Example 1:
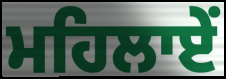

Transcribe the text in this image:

ਮਹਿਲਾਏਂ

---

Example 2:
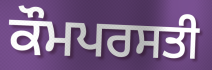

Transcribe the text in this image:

ਕੌਮਪਰਸਤੀ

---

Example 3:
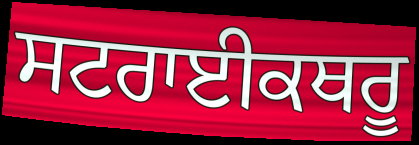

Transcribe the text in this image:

ਸਟਰਾਈਕਥਰੂ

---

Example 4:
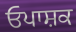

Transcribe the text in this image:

ਓਪਾਸ਼ਕ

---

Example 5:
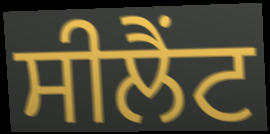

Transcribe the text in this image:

ਸੀਲੈਂਟ